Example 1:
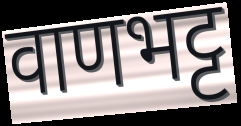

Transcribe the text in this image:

वाणभट्ट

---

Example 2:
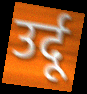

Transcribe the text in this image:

उर्दू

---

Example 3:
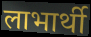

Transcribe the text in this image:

लाभार्थी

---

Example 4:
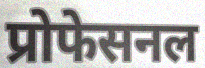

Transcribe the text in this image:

प्रोफेसनल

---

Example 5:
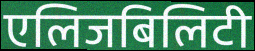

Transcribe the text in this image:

एलिजबिलिटी